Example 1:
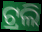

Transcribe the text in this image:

ଟ୍ରଲି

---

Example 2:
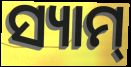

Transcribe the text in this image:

ସ୍ୟାମ୍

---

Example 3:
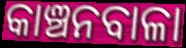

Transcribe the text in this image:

କାଞ୍ଚନବାଳା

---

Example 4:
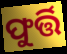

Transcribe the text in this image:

ଫୁର୍ତ୍ତି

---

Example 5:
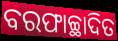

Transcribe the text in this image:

ବରଫାଚ୍ଛାଦିତ